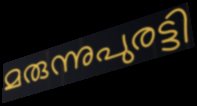
മരുന്നുപുരട്ടി